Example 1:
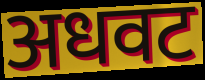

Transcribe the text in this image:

अधवट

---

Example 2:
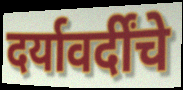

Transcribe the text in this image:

दर्यावर्दींचे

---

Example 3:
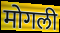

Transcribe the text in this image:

मोगली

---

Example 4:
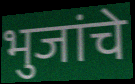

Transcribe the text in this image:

भुजांचे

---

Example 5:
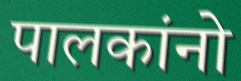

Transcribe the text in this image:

पालकांनो